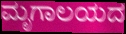
ಮೃಗಾಲಯದ